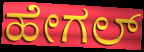
ಹೇಗಲ್